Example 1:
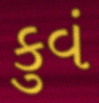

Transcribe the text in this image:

કુવં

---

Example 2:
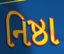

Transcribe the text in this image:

નિષ્ઠા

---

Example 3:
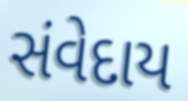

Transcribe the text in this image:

સંવેદાય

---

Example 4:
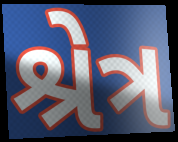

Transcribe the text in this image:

શ્રેત્ર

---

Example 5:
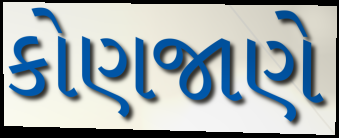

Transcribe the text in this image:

કોણજાણે